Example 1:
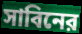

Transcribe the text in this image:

সাবিনের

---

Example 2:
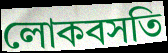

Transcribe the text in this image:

লোকবসতি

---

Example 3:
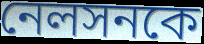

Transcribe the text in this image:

নেলসনকে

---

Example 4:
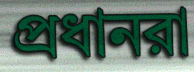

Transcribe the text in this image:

প্রধানরা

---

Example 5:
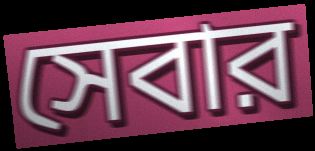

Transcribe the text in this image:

সেবার